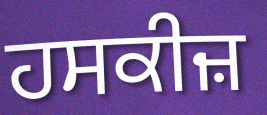
ਹਸਕੀਜ਼